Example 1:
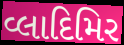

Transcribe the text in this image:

વ્લાદિમિર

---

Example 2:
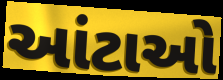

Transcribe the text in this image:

આંટાઓ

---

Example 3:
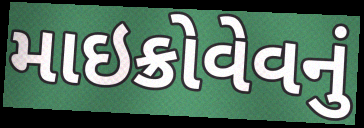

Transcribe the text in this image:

માઇક્રોવેવનું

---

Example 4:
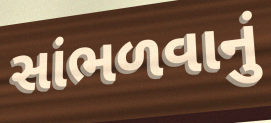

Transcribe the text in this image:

સાંભળવાનું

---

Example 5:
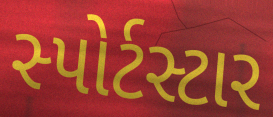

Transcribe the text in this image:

સ્પોર્ટસ્ટાર